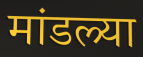
मांडल्या